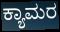
ಕ್ಯಾಮರ